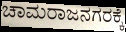
ಚಾಮರಾಜನಗರಕ್ಕೆ